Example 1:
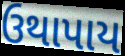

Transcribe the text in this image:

ઉથાપાય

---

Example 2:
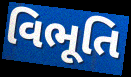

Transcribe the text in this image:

વિભૂતિ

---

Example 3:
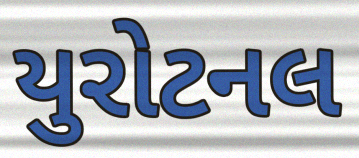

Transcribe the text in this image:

યુરોટનલ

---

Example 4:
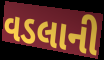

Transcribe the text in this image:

વડલાની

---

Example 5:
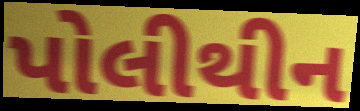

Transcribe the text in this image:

પોલીથીન